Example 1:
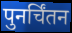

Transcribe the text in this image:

पुनर्चिंतन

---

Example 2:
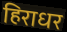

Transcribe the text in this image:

हिराधर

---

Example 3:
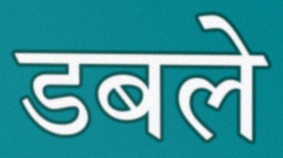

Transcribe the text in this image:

डबले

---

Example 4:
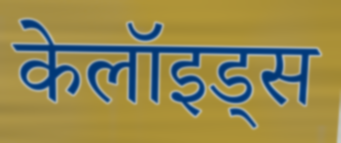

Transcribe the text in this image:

केलॉइड्स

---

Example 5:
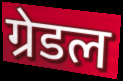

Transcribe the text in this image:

ग्रेडल